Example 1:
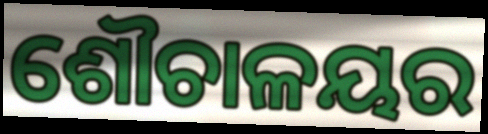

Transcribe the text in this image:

ଶୌଚାଳୟର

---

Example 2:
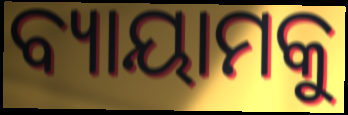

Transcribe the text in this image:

ବ୍ୟାୟାମକୁ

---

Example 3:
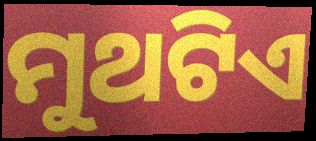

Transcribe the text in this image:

ମୁଥଟିଏ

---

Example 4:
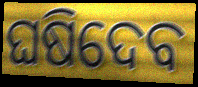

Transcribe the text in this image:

ଘଷିଦେବ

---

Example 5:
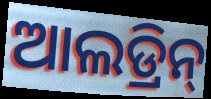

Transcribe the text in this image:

ଆଲଡ୍ରିନ୍